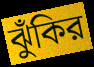
ঝুঁকির